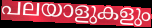
പലയാളുകളും